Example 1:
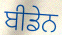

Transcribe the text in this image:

ਬੀਡੇਨ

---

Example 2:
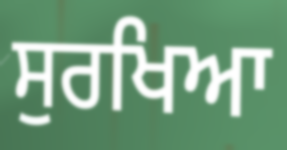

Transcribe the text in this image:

ਸੁਰਖਿਆ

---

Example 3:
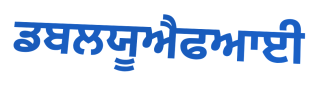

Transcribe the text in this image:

ਡਬਲਯੂਐਫਆਈ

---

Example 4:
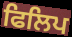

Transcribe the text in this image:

ਫਿਲਿਪ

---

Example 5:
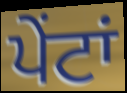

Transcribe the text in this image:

ਪੇਂਟਾਂ